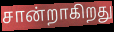
சான்றாகிறது